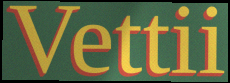
Vettii